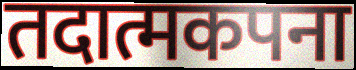
तदात्मकपना